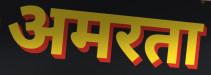
अमरता